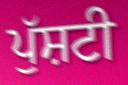
ਪੁੱਸ਼ਟੀ